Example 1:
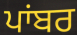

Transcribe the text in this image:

ਪਾਂਬਰ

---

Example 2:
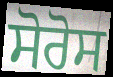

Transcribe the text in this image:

ਸੋਰੋਸ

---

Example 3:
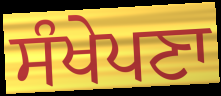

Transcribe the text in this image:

ਸੰਖੇਪਣਾ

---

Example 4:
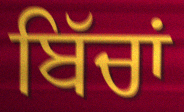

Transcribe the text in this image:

ਬਿੱਚਾਂ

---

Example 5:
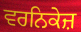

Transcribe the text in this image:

ਵਰਨਿਕੇਜ਼